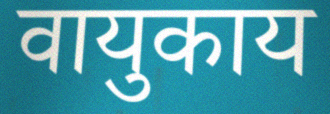
वायुकाय